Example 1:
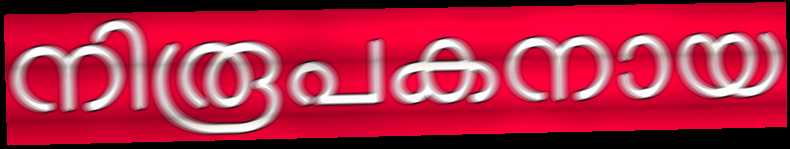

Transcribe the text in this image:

നിരൂപകനായ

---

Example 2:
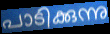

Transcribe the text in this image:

പാടിക്കുന്നു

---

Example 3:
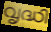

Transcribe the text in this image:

വൃദ്ധി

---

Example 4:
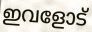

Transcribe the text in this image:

ഇവളോട്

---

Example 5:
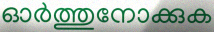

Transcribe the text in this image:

ഓർത്തുനോക്കുക